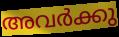
അവർക്കു